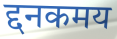
द्दनकमय